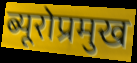
ब्यूरोप्रमुख